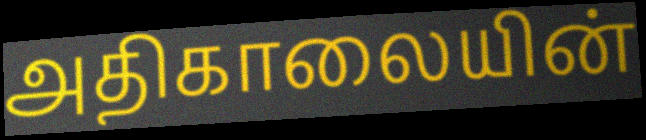
அதிகாலையின்